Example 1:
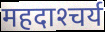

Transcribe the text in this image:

महदाश्चर्य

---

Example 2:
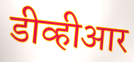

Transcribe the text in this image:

डीव्हीआर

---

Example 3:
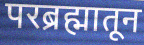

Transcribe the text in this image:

परब्रह्मातून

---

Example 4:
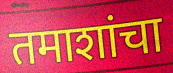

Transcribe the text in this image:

तमाशांचा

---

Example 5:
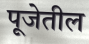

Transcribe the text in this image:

पूजेतील